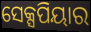
ସେକ୍ସପିୟାର